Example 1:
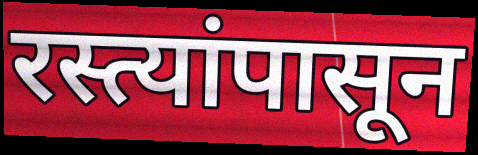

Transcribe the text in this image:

रस्त्यांपासून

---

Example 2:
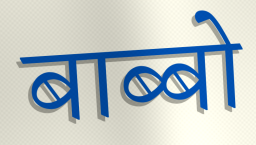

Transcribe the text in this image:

बाब्बो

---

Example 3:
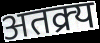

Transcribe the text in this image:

अतक्र्य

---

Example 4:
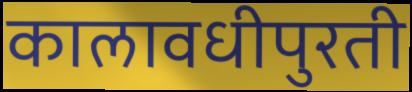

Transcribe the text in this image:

कालावधीपुरती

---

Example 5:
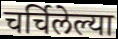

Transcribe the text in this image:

चर्चिलेल्या